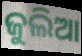
ଜୁଲିଆ